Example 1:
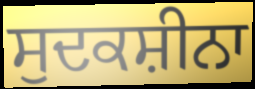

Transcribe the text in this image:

ਸੁਦਕਸ਼ੀਨਾ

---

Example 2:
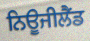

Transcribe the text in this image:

ਨਿਊਜੀਲੈਂਡ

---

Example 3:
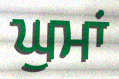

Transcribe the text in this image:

ਘੁਮਾਂ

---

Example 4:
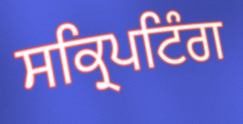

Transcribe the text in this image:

ਸਕ੍ਰਿਪਟਿੰਗ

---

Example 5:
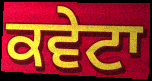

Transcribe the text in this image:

ਕਵੇਟਾ